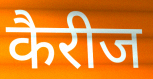
कैरीज